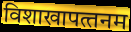
विशाखापत्‍तनम